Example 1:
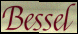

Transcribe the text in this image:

Bessel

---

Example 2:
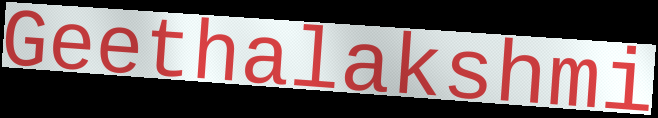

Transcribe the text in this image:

Geethalakshmi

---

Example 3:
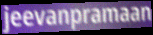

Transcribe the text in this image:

jeevanpramaan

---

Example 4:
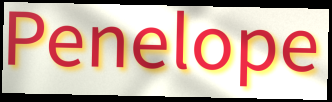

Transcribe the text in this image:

Penelope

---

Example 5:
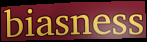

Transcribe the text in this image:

biasness